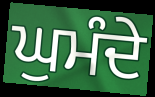
ਘੁਮੰਦੇ